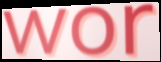
wor